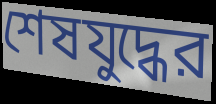
শেষযুদ্ধের